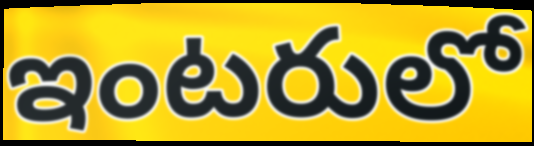
ఇంటరులో